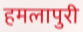
हमलापुरी